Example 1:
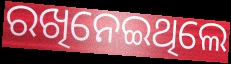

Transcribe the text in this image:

ରଖିନେଇଥିଲେ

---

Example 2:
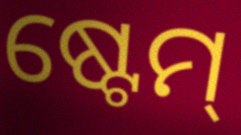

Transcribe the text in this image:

ଷ୍ଟେମ୍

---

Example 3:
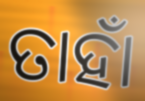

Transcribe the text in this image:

ତାହାଁ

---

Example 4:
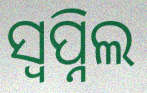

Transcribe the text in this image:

ସ୍ୱପ୍ନିଲ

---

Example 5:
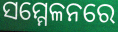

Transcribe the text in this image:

ସମ୍ମେଳନରେ